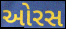
ઓરસ